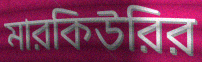
মারকিউরির